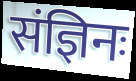
संज्ञिनः